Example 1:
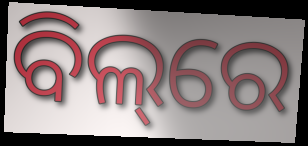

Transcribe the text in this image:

ବିଲ୍‌ରେ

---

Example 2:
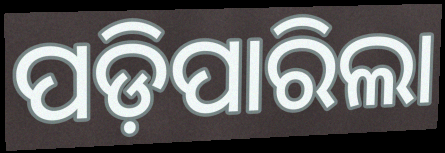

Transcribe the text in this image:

ପଡ଼ିପାରିଲା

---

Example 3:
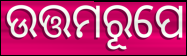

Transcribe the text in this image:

ଉତ୍ତମରୂପେ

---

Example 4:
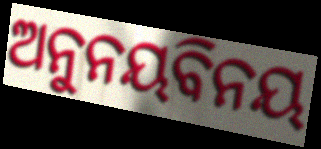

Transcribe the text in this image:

ଅନୁନୟବିନୟ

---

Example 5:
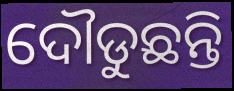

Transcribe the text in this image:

ଦୌଡୁଛନ୍ତି